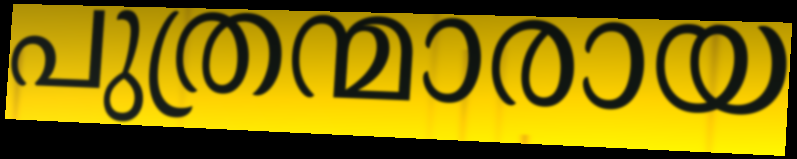
പുത്രന്മാരായ